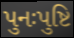
પુનઃપુષ્ટિ